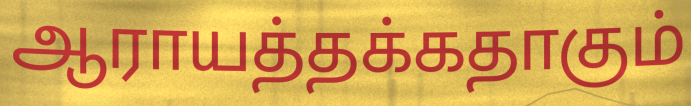
ஆராயத்தக்கதாகும்